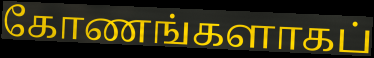
கோணங்களாகப்